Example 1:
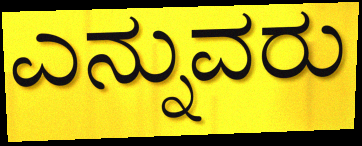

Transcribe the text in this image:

ಎನ್ನುವರು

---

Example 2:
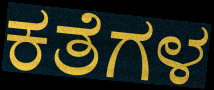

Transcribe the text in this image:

ಕತೆಗಳ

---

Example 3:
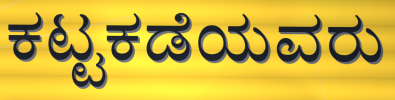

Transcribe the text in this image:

ಕಟ್ಟಕಡೆಯವರು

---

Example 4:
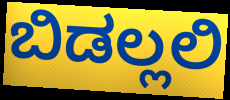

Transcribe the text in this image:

ಬಿಡಲ್ಲಲಿ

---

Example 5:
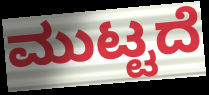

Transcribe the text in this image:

ಮುಟ್ಟದೆ